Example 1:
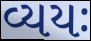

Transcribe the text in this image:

વ્યયઃ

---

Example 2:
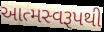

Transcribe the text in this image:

આત્મસ્વરૂપથી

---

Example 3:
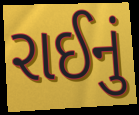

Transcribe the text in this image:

રાઈનું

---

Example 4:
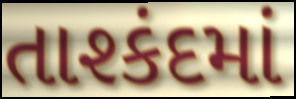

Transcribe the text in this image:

તાશ્કંદમાં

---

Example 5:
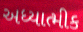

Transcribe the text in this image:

અધ્યાત્મીક